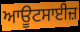
ਆਊਟਸਾਈਜ਼